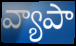
వ్యాపా